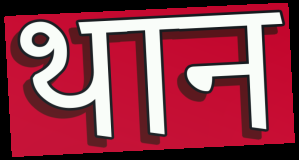
थान